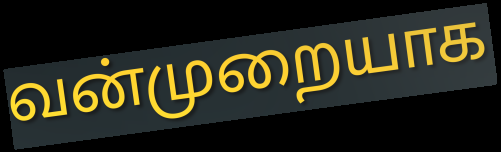
வன்முறையாக